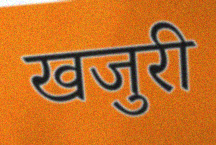
खजुरी